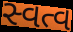
સ્વત્વ